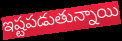
ఇష్టపడుతున్నాయి